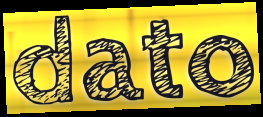
dato